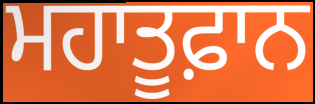
ਮਹਾਤੂਫ਼ਾਨ